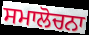
ਸਮਾਲੋਚਨਾ